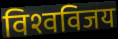
विश्वविजय